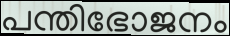
പന്തിഭോജനം